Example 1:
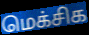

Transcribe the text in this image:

மெக்சிக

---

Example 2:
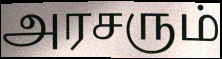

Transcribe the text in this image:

அரசரும்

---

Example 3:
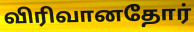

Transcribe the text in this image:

விரிவானதோர்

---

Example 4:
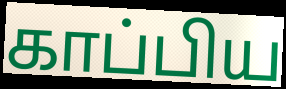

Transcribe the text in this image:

காப்பிய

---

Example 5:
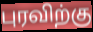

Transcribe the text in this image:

புரவிற்கு